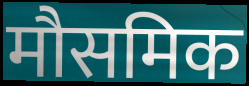
मौसमिक